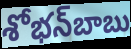
శోభన్‌బాబు